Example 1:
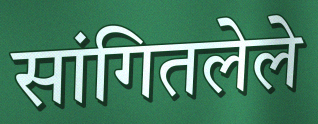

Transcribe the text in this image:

सांगितलेले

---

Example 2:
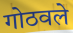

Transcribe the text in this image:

गोठवले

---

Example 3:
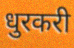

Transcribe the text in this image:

धुरकरी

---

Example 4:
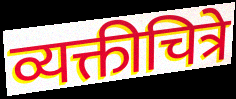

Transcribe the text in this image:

व्यक्तीचित्रे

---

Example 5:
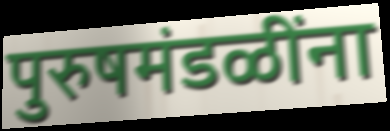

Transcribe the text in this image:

पुरुषमंडळींना